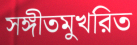
সঙ্গীতমুখরিত